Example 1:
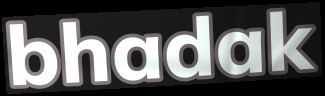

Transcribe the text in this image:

bhadak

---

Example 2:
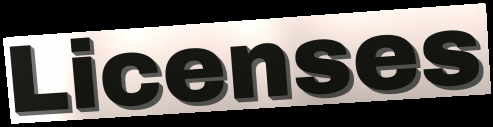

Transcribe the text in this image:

Licenses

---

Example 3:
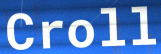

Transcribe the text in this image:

Croll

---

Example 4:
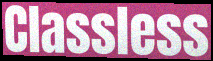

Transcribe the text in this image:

Classless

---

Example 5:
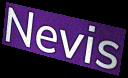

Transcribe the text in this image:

Nevis